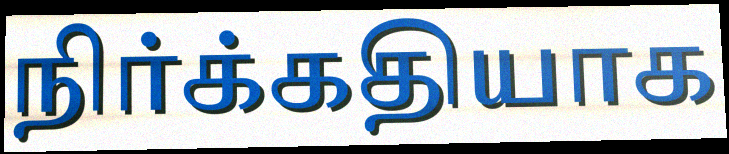
நிர்க்கதியாக